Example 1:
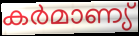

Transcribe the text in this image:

കർമാണ്യ്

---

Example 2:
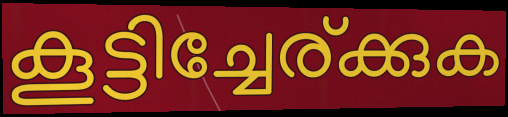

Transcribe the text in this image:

കൂട്ടിച്ചേര്ക്കുക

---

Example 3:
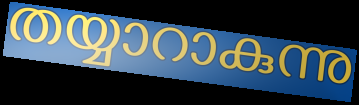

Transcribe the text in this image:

തയ്യാറാകുന്നു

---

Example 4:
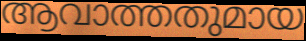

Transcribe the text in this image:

ആവാത്തതുമായ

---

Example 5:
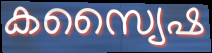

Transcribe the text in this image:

കസ്യൈഷ